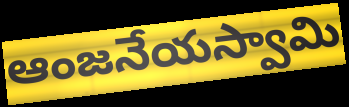
ఆంజనేయస్వామి